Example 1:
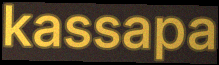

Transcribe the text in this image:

kassapa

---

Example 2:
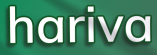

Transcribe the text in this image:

hariva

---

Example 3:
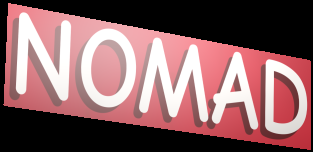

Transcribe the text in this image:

NOMAD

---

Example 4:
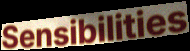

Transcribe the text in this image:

Sensibilities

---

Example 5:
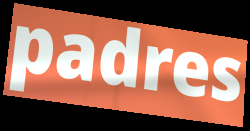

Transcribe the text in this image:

padres